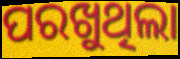
ପରଖୁଥିଲା